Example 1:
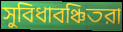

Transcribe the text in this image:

সুবিধাবঞ্চিতরা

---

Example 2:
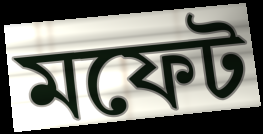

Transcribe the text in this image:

মফেট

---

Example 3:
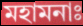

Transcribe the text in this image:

মহামনাঃ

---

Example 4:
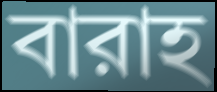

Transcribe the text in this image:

বারাহ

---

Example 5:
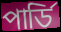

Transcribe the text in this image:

পার্ডি